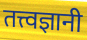
तत्त्वज्ञानी